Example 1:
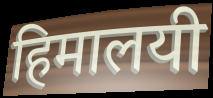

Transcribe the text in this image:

हिमालयी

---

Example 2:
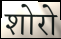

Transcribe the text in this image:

शोरो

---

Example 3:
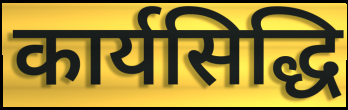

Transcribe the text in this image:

कार्यसिद्धि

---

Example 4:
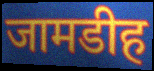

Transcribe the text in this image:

जामडीह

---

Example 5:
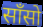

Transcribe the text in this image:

साँसो